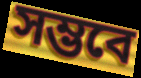
সম্ভবে